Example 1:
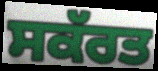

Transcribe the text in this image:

ਸਕੱਰਤ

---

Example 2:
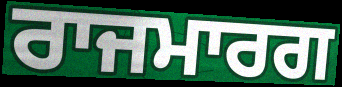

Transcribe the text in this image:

ਰਾਜਮਾਰਗ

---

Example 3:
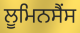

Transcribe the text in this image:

ਲੂਮਿਨਸੈਂਸ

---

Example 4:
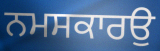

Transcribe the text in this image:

ਨਮਸਕਾਰਉ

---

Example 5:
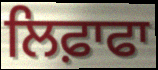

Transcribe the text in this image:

ਲਿਫ਼ਾਫਾ